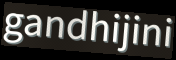
gandhijini